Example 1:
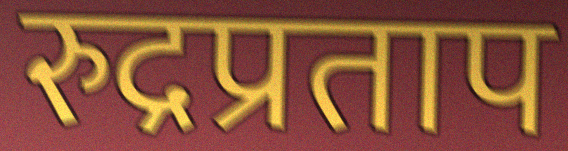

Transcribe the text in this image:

रुद्रप्रताप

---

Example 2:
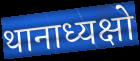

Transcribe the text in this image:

थानाध्यक्षो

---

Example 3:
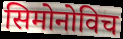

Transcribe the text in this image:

सिमोनोविच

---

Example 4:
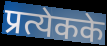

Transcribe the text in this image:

प्रत्येकके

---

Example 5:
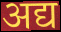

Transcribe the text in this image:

अद्य